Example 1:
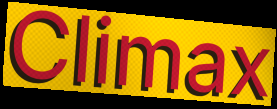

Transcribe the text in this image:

Climax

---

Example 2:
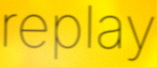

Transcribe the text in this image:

replay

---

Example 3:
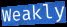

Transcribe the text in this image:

Weakly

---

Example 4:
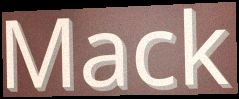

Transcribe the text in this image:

Mack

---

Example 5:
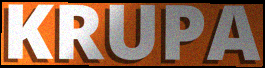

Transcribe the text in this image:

KRUPA